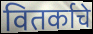
वितर्काचे